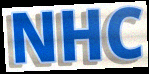
NHC